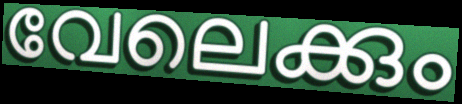
വേലെക്കും